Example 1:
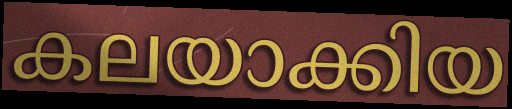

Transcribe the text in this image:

കലയാക്കിയ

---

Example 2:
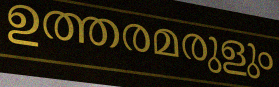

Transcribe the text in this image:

ഉത്തരമരുളും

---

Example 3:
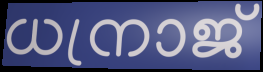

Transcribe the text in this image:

ധന്രാജ്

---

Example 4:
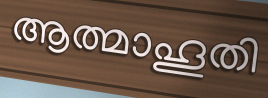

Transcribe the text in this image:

ആത്മാഹൂതി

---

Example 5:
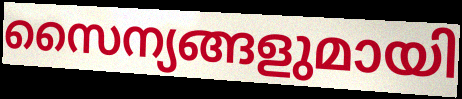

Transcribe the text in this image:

സൈന്യങ്ങളുമായി